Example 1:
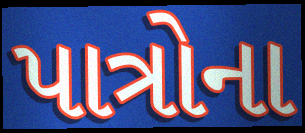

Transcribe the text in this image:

પાત્રોના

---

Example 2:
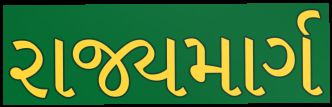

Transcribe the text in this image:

રાજ્યમાર્ગ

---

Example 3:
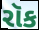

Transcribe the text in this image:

રૉક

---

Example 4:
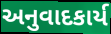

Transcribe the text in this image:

અનુવાદકાર્ય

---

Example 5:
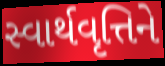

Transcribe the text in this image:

સ્વાર્થવૃત્તિને